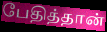
பேதித்தான்